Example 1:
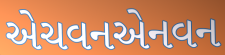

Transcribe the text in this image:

એચવનએનવન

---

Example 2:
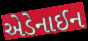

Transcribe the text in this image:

એડેનાઈન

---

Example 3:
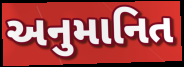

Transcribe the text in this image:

અનુમાનિત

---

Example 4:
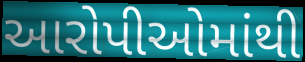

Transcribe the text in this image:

આરોપીઓમાંથી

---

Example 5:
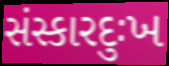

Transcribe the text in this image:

સંસ્કારદુઃખ